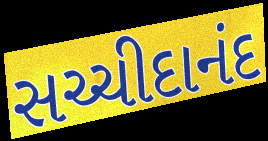
સચ્ચીદાનંદ